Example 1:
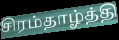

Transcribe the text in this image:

சிரம்தாழ்த்தி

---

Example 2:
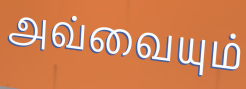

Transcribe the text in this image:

அவ்வையும்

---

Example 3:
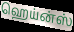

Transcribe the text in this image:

ஹெய்ன்ஸ்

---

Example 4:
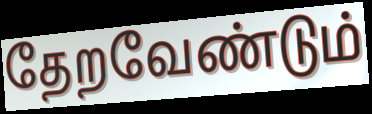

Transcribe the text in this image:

தேறவேண்டும்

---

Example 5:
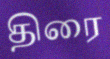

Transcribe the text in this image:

திரை